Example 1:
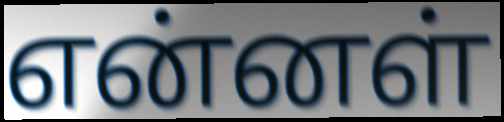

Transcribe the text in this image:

என்னள்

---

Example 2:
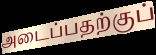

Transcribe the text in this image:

அடைப்பதற்குப்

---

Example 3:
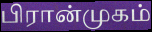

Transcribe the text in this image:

பிரான்முகம்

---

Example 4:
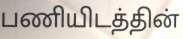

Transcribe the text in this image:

பணியிடத்தின்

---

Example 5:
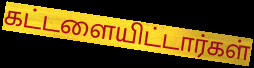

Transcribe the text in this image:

கட்டளையிட்டார்கள்